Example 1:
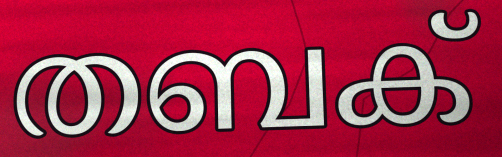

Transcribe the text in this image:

തബക്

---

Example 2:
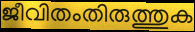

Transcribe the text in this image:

ജീവിതംതിരുത്തുക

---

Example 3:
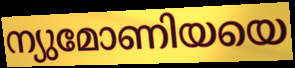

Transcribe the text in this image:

ന്യുമോണിയയെ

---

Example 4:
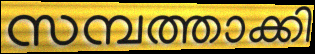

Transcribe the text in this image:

സമ്പത്താക്കി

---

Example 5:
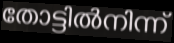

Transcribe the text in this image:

തോട്ടിൽനിന്ന്